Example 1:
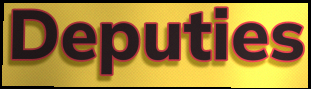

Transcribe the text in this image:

Deputies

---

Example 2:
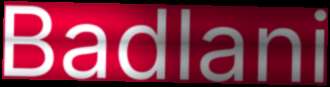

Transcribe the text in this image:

Badlani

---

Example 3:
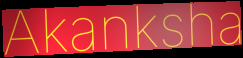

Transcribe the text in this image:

Akanksha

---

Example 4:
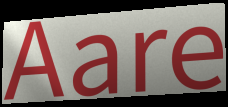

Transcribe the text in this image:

Aare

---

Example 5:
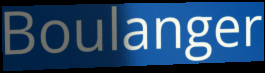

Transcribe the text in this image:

Boulanger